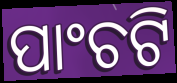
ପାଂଚଟି